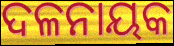
ଦଳନାୟକ